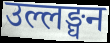
उल्लङ्घन